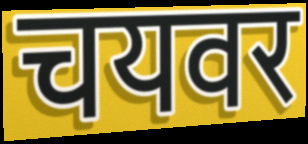
चयवर